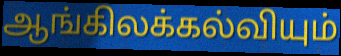
ஆங்கிலக்கல்வியும்